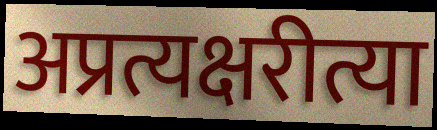
अप्रत्यक्षरीत्या